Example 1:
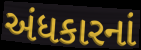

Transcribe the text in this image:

અંધકારનાં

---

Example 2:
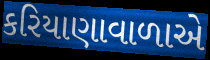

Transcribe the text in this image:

કરિયાણાવાળાએ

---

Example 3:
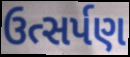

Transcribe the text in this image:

ઉત્સર્પણ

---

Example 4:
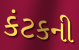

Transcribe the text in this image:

કંટકની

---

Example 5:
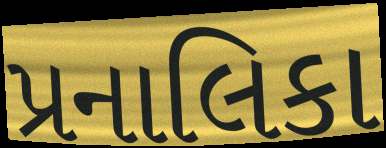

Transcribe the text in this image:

પ્રનાલિકા